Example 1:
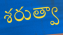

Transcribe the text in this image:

శరుత్వా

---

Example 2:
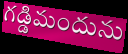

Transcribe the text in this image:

గడ్డిమందును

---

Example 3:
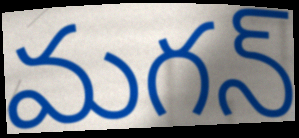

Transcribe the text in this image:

మగన్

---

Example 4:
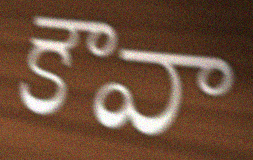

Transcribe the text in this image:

కౌవా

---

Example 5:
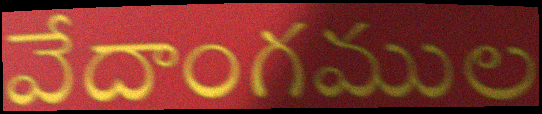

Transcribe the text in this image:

వేదాంగముల